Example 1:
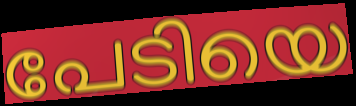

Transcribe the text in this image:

പേടിയെ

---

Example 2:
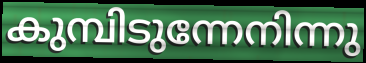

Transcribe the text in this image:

കുമ്പിടുന്നേനിന്നു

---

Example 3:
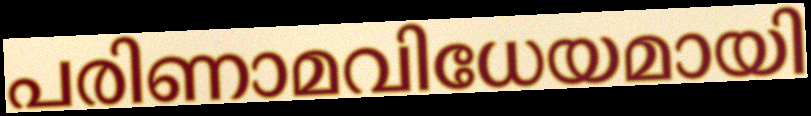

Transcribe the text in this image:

പരിണാമവിധേയമായി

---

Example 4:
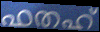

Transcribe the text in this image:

ഫതഹ്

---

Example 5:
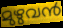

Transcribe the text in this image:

മുഴുവൻ